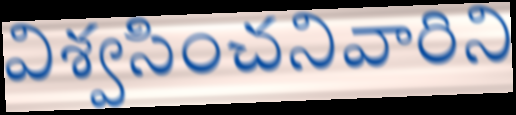
విశ్వసించనివారిని